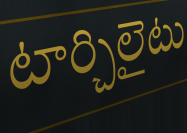
టార్చిలైటు